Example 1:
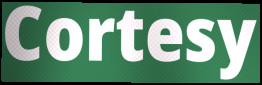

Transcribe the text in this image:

Cortesy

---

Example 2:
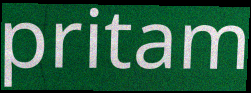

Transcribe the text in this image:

pritam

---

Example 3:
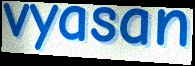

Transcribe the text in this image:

vyasan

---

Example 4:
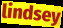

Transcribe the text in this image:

lindsey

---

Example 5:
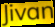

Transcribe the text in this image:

Jivan